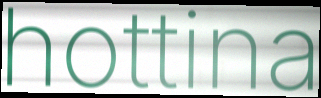
hottina